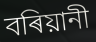
বৰিয়ানী